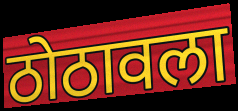
ठोठावला